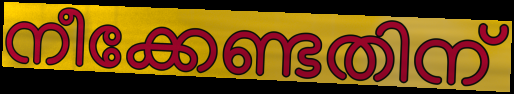
നീക്കേണ്ടതിന്